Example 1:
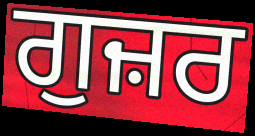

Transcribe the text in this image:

ਗੁਜ਼ਰ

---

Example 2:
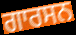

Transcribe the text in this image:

ਗਾਰਸਨ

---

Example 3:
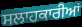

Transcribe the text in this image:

ਸਲਾਹਕਾਰੀਆਂ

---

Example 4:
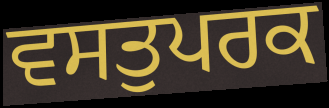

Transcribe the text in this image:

ਵਸਤੁਪਰਕ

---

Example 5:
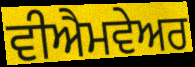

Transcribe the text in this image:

ਵੀਐਮਵੇਅਰ